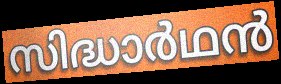
സിദ്ധാർഥൻ